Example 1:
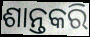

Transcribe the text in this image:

ଶାନ୍ତକରି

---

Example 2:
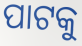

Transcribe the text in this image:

ପାଟକୁ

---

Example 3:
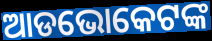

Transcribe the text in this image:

ଆଡଭୋକେଟଙ୍କ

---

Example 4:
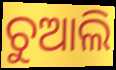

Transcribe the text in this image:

ଚୁଆଲି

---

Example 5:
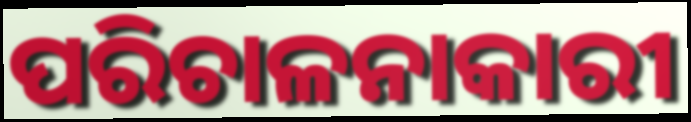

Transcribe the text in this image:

ପରିଚାଳନାକାରୀ